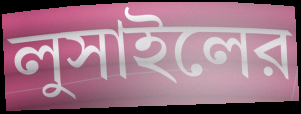
লুসাইলের